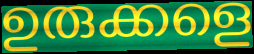
ഉരുക്കളെ